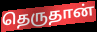
தெருதான்